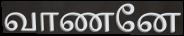
வாணனே